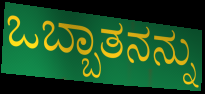
ಒಬ್ಬಾತನನ್ನು